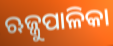
ଋଜ୍ଜୁପାଳିକା